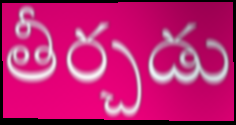
తీర్చడు